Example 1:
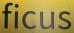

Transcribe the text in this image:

ficus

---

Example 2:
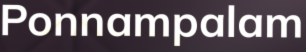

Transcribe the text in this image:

Ponnampalam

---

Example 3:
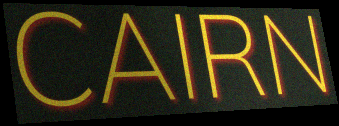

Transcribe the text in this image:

CAIRN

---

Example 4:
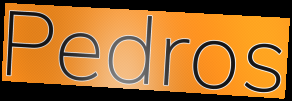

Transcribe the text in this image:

Pedros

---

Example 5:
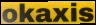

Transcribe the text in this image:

okaxis